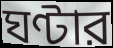
ঘণ্টার